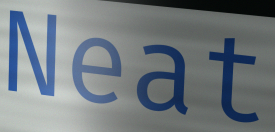
Neat